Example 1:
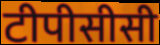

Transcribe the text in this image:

टीपीसीसी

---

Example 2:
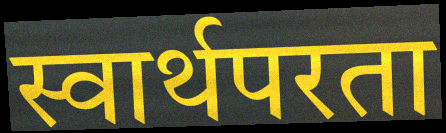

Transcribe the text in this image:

स्वार्थपरता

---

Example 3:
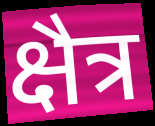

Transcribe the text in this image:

क्षैत्र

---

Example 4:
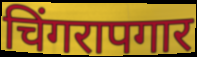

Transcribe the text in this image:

चिंगरापगार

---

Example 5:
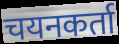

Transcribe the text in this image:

चयनकर्ता